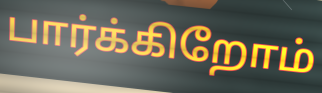
பார்க்கிறோம்